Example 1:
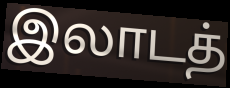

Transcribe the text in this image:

இலாடத்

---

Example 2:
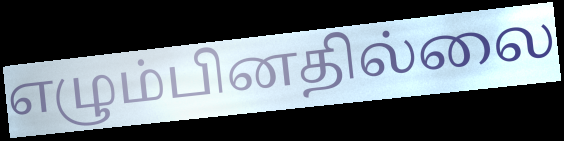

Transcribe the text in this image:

எழும்பினதில்லை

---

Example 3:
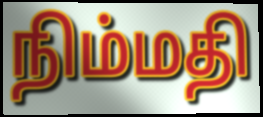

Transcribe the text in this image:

நிம்மதி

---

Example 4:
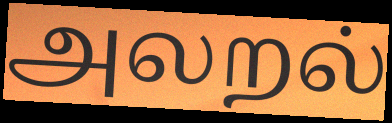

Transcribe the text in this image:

அலறல்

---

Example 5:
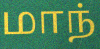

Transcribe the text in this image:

மாந்